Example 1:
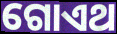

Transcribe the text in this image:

ଗୋଏଥ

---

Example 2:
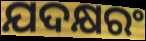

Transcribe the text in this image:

ଯଦକ୍ଷରଂ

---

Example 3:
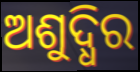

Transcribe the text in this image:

ଅଶୁଦ୍ଧିର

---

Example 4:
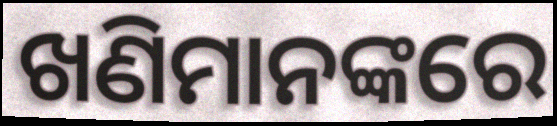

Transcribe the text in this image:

ଖଣିମାନଙ୍କରେ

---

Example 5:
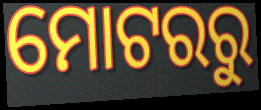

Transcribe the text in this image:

ମୋଟରରୁ